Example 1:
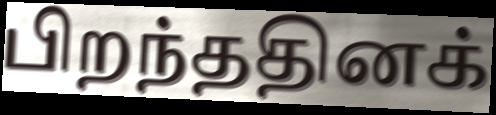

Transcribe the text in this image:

பிறந்ததினக்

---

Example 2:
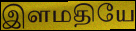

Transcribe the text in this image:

இளமதியே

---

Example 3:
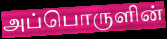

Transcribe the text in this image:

அப்பொருளின்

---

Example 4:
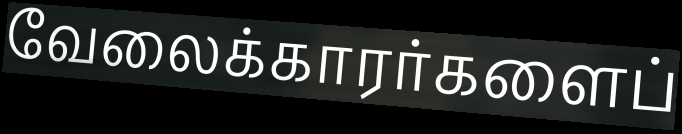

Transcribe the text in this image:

வேலைக்காரர்களைப்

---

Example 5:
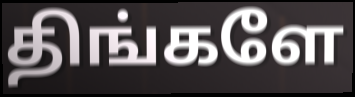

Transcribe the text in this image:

திங்களே